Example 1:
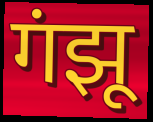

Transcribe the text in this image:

गंझू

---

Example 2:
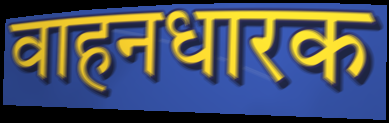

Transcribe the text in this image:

वाहनधारक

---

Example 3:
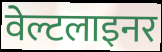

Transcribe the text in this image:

वेल्टलाइनर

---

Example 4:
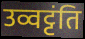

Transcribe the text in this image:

उव्वट्टंति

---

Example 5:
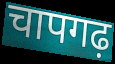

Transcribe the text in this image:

चापगढ़